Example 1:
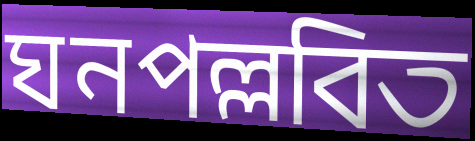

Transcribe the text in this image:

ঘনপল্লবিত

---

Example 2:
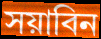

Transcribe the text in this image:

সয়াবিন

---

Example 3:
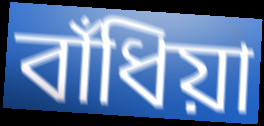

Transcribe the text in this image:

বাঁধিয়া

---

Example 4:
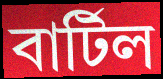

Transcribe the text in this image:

বার্টিল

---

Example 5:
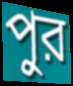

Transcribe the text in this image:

পুর